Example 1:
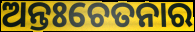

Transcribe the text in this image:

ଅନ୍ତଃଚେତନାର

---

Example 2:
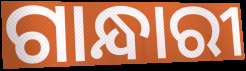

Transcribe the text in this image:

ଗାନ୍ଧାରୀ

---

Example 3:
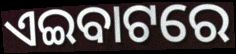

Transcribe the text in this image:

ଏଇବାଟରେ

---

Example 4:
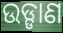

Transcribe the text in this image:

ଉଡ୍ଡାଣ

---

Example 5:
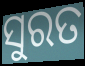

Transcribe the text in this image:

ସୁରତ